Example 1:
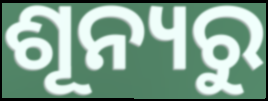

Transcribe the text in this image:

ଶୂନ୍ୟରୁ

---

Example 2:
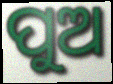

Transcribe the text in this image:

ପୁଅ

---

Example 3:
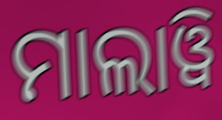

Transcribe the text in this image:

ମାଲାୱି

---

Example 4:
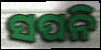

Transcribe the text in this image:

ସପନି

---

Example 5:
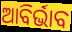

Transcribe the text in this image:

ଆବିର୍ଭାବ